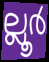
ല്ലൂർ